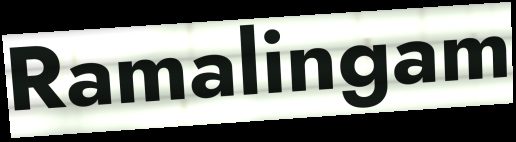
Ramalingam